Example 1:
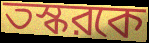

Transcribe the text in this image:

তস্করকে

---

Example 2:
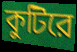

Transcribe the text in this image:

কুটিরে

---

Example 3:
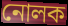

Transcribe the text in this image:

নোলক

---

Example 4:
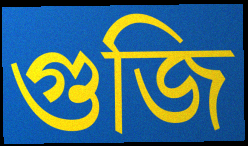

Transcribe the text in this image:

গুজি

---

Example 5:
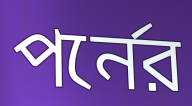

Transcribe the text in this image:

পর্নের